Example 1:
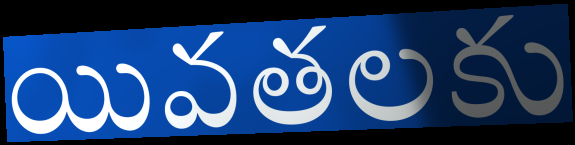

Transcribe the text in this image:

యివతలకు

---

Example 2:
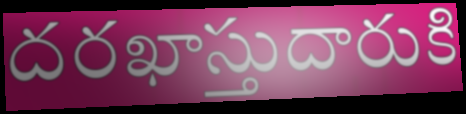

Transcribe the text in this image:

దరఖాస్తుదారుకి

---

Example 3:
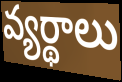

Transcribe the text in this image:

వ్యర్థాలు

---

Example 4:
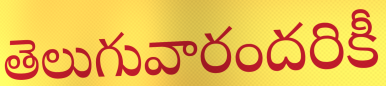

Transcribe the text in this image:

తెలుగువారందరికీ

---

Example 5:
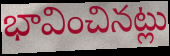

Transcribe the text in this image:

భావించినట్లు